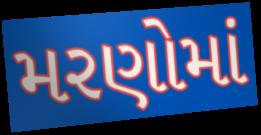
મરણોમાં